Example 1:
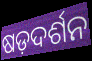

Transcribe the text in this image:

ଷଡ଼ଦର୍ଶନ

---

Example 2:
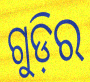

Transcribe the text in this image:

ଗୁଡ଼ିର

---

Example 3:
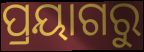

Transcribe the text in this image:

ପ୍ରୟାଗରୁ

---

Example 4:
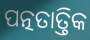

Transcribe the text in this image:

ପତ୍ନତାତ୍ତିକ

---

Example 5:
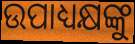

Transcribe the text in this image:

ଉପାଧ୍ୟକ୍ଷଙ୍କୁ